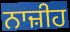
ਨਾਜ਼ੀਹ